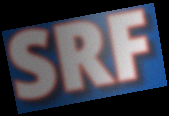
SRF